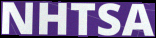
NHTSA